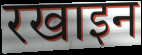
रखाइन